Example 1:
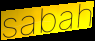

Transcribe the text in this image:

sabah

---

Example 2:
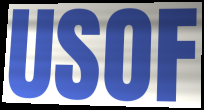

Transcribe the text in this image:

USOF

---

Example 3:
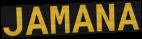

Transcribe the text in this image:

JAMANA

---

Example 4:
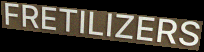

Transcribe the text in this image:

FRETILIZERS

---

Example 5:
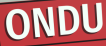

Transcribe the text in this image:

ONDU